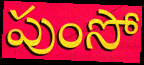
పుంసో